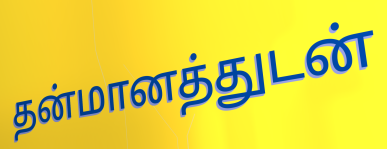
தன்மானத்துடன்